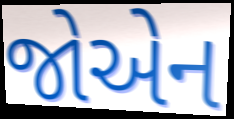
જોએન